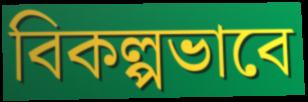
বিকল্পভাবে